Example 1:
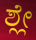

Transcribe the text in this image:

ಶ್ಲೇ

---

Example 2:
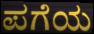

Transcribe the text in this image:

ಪಗೆಯ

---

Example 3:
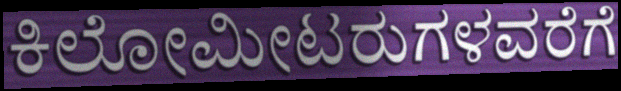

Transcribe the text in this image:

ಕಿಲೋಮೀಟರುಗಳವರೆಗೆ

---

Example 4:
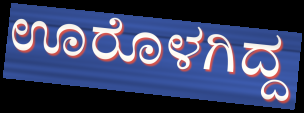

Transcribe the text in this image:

ಊರೊಳಗಿದ್ದ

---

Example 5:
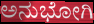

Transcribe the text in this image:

ಅನುಭೋಗಿ